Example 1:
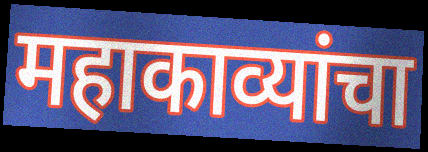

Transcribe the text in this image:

महाकाव्यांचा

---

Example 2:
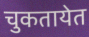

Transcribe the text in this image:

चुकतायेत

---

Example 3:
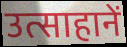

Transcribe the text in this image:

उत्साहानें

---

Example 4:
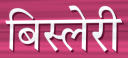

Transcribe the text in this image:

बिस्लेरी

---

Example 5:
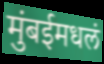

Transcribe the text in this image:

मुंबईमधलं